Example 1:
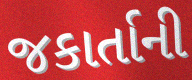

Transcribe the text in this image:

જકાર્તાની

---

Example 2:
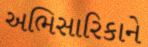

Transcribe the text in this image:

અભિસારિકાને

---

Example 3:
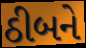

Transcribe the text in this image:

ઠીબને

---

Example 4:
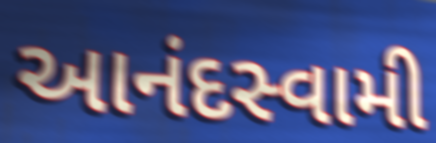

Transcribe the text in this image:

આનંદસ્વામી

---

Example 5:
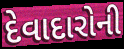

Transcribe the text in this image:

દેવાદારોની